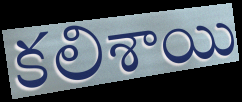
కలిశాయి